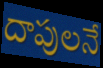
దాపులనే